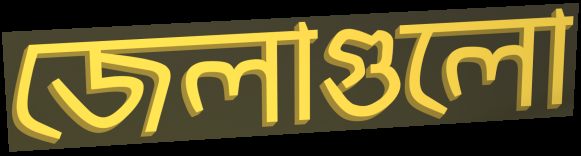
জেলাগুলো